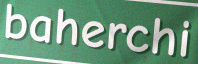
baherchi